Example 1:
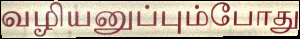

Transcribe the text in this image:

வழியனுப்பும்போது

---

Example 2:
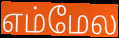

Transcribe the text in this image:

எம்மேல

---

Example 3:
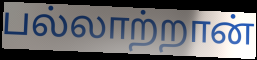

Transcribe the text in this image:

பல்லாற்றான்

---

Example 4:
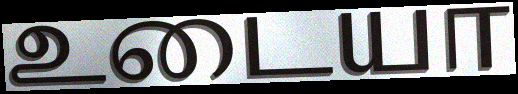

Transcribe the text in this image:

உடையா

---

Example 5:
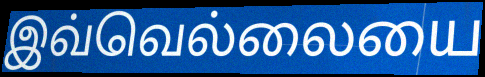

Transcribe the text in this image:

இவ்வெல்லையை